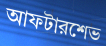
আফটারশেভ